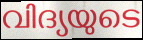
വിദ്യയുടെ